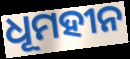
ଧୂମହୀନ